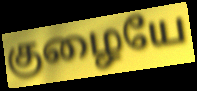
குழையே